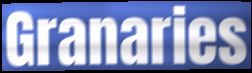
Granaries